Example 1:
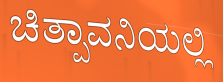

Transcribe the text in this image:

ಚಿತ್ಪಾವನಿಯಲ್ಲಿ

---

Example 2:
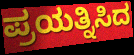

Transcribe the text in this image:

ಪ್ರಯತ್ನಿಸಿದ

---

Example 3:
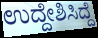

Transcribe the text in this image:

ಉದ್ದೇಶಿಸಿದ್ದೆ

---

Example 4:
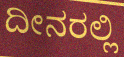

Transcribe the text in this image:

ದೀನರಲ್ಲಿ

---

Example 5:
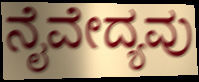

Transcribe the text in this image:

ನೈವೇದ್ಯವು